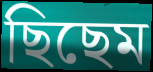
ছিছেম